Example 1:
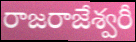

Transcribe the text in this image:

రాజరాజేశ్వరీ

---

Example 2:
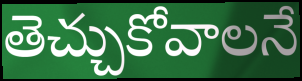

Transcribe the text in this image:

తెచ్చుకోవాలనే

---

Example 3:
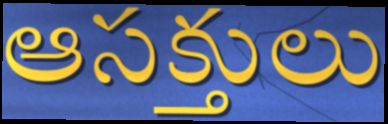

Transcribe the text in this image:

ఆసక్తులు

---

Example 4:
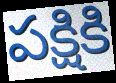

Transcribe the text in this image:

పక్షికి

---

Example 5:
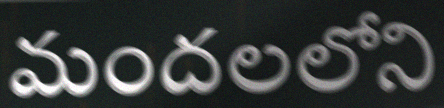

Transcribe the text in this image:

మందలలోని